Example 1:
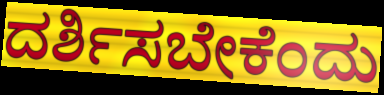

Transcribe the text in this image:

ದರ್ಶಿಸಬೇಕೆಂದು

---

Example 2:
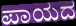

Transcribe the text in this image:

ಪಾಯದ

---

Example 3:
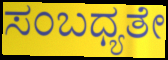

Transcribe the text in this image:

ಸಂಬಧ್ಯತೇ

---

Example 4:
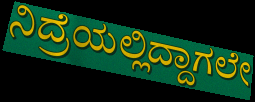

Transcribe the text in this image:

ನಿದ್ರೆಯಲ್ಲಿದ್ದಾಗಲೇ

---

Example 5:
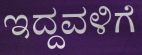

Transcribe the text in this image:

ಇದ್ದವಳಿಗೆ